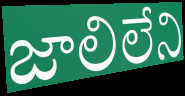
జాలిలేని